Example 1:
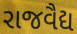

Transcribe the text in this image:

રાજવૈદ્ય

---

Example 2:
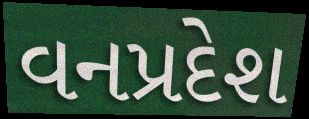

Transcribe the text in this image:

વનપ્રદેશ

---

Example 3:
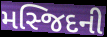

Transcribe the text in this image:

મસ્જિદની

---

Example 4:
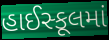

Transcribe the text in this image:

હાઈસ્કૂલમાં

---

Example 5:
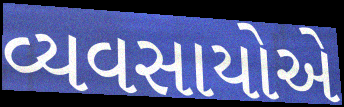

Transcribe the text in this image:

વ્યવસાયોએ